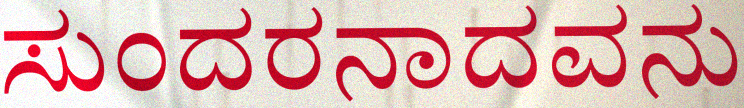
ಸುಂದರನಾದವನು